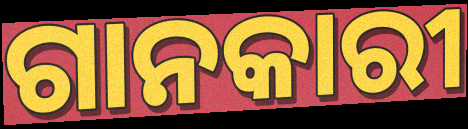
ଗାନକାରୀ